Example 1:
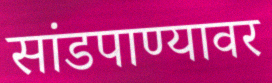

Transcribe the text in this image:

सांडपाण्यावर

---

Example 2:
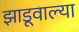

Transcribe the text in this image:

झाडूवाल्या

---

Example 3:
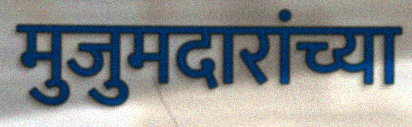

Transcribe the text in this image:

मुजुमदारांच्या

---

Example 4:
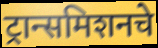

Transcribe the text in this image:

ट्रान्समिशनचे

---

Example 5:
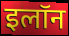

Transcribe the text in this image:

इलॉन